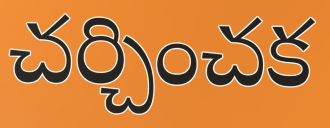
చర్చించక